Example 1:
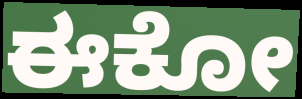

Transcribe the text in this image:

ಈಕೋ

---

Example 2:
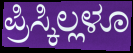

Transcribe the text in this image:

ಪ್ರಿಸ್ಕಿಲ್ಲಳೂ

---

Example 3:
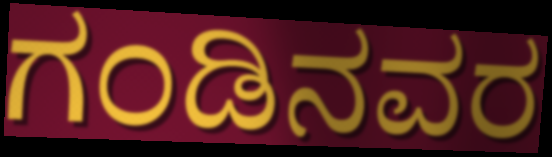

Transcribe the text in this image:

ಗಂಡಿನವರ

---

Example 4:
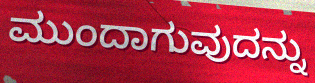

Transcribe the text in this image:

ಮುಂದಾಗುವುದನ್ನು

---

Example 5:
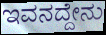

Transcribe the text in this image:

ಇವನದ್ದೇನು